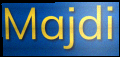
Majdi